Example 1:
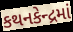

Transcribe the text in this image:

કથનકેન્દ્રમાં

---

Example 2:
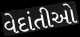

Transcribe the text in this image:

વેદાંતીઓ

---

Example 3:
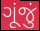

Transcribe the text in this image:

ગૂંજું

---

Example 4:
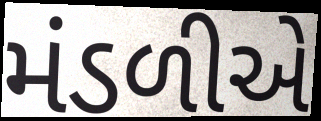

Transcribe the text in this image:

મંડળીએ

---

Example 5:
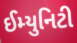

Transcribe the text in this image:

ઈમ્યુનિટી